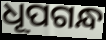
ଧୂପଗନ୍ଧ